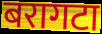
बरागटा